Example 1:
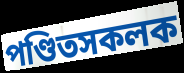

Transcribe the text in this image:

পণ্ডিতসকলক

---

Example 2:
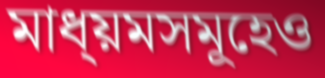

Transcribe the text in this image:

মাধ্য়মসমূহেও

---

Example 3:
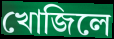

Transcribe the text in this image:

খোজিলে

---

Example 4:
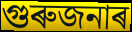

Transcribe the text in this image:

গুৰুজনাৰ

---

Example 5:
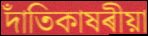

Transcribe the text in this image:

দাঁতিকাষৰীয়া